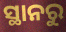
ସ୍ଥାନରୁ